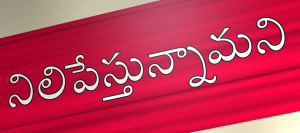
నిలిపేస్తున్నామని